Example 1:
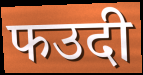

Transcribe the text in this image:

फउदी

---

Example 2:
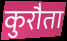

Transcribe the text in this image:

कुरौता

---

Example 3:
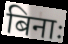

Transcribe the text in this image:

बिनाः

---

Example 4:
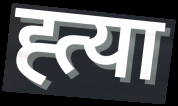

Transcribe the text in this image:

ह्त्या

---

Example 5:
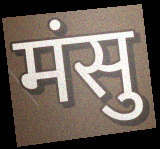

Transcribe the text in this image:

मंसु